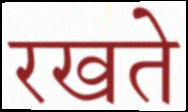
रखते